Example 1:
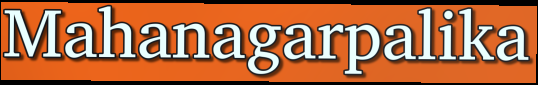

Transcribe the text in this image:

Mahanagarpalika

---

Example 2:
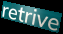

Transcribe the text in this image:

retrive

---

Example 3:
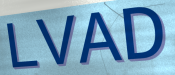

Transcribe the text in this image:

LVAD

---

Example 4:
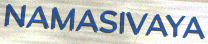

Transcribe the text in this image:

NAMASIVAYA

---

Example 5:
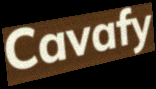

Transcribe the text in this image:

Cavafy